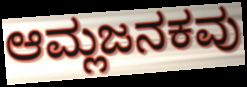
ಆಮ್ಲಜನಕವು